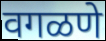
वगळणे